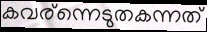
കവര്ന്നെടുതകന്നത്